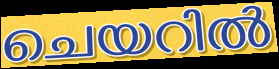
ചെയറിൽ